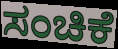
ಸಂಚಿಕೆ